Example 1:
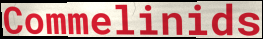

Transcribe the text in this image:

Commelinids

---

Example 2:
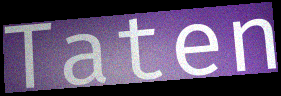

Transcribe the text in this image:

Taten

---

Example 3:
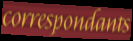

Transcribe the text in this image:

correspondants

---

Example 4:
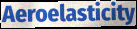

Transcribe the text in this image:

Aeroelasticity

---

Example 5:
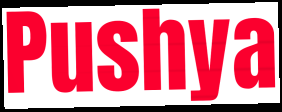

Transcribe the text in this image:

Pushya